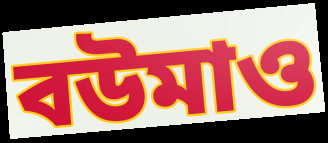
বউমাও